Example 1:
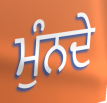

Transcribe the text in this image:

ਮੁੰਨਦੇ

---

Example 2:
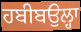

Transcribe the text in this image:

ਹਬੀਬਉਲ੍ਹਾ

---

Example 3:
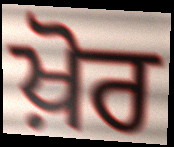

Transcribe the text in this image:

ਖ਼ੋਰ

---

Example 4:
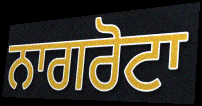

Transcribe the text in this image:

ਨਾਗਰੋਟਾ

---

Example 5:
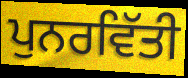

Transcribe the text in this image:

ਪੁਨਰਵਿੱਤੀ